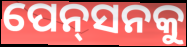
ପେନ୍‌ସନକୁ